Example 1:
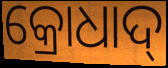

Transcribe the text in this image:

କ୍ରୋଧାଦ୍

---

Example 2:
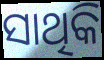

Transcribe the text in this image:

ସାଥିକି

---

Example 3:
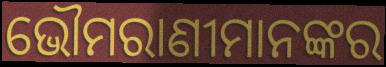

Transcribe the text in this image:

ଭୌମରାଣୀମାନଙ୍କର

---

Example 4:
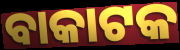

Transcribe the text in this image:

ବାକାଟକ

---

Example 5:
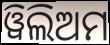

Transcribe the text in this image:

ୱିଲିଅମ